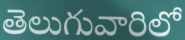
తెలుగువారిలో